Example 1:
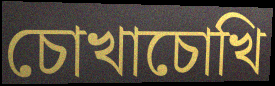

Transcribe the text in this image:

চোখাচোখি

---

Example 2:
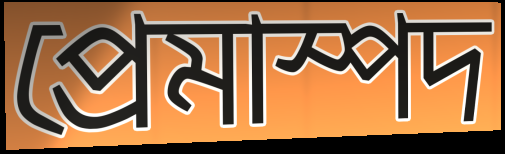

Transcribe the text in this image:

প্রেমাস্পদ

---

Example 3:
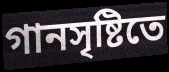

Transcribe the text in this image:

গানসৃষ্টিতে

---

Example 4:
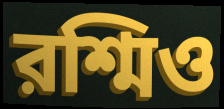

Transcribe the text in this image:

রশ্মিও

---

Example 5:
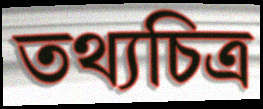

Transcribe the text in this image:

তথ্যচিত্র